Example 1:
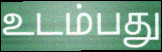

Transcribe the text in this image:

உடம்பது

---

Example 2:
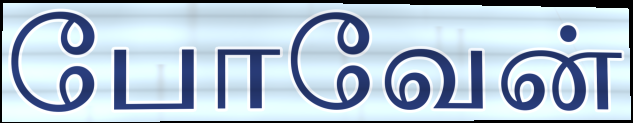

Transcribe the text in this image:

போவேன்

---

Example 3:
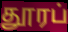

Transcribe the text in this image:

தூரப்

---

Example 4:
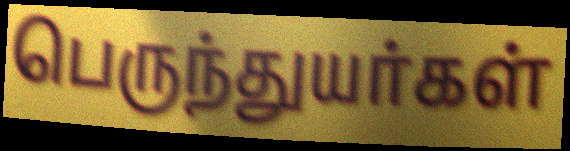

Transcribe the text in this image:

பெருந்துயர்கள்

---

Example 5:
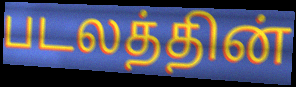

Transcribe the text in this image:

படலத்தின்